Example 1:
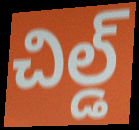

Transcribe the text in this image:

చిల్డ్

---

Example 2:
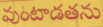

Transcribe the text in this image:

వుంటాడతను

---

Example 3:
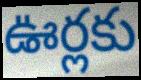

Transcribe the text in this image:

ఊర్లకు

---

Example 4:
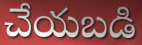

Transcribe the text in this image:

చేయబడి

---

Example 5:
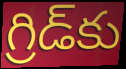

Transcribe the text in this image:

గ్రిడ్‌కు